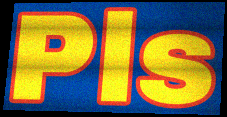
Pls